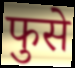
फुसे